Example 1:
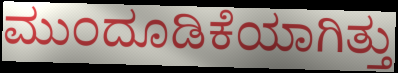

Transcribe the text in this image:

ಮುಂದೂಡಿಕೆಯಾಗಿತ್ತು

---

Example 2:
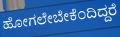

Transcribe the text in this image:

ಹೋಗಲೇಬೇಕೆಂದಿದ್ದರೆ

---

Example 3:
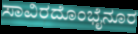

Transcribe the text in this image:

ಸಾವಿರದೊಂಭೈನೂರ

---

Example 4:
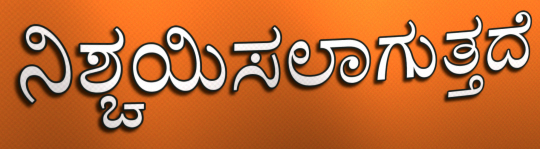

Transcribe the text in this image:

ನಿಶ್ಚಯಿಸಲಾಗುತ್ತದೆ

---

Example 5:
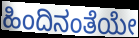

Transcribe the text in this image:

ಹಿಂದಿನಂತೆಯೇ